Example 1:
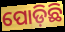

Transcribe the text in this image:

ପୋଡ଼ିଛି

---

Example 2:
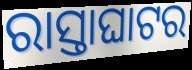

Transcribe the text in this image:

ରାସ୍ତାଘାଟର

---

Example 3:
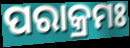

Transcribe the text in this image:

ପରାକ୍ରମଃ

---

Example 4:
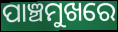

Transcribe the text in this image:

ପାଞ୍ଚମୁଖରେ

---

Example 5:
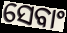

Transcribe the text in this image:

ସେବାଂ